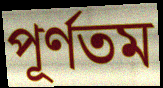
পূর্ণতম